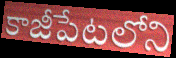
కాజీపేటలోని